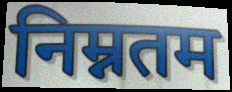
निम्नतम